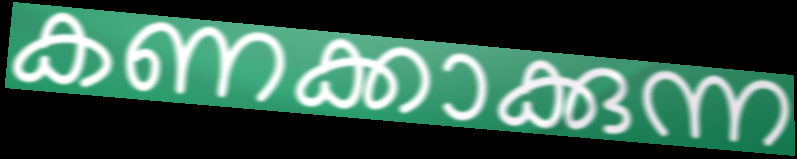
കണക്കാക്കുന്ന